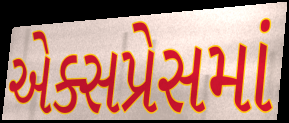
એક્સપ્રેસમાં